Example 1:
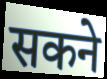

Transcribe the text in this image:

सकने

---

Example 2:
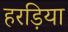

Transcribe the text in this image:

हरड़िया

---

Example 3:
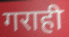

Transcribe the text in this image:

गराही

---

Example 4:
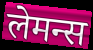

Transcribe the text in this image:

लेमन्स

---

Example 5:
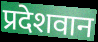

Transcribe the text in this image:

प्रदेशवान